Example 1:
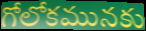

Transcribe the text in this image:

గోలోకమునకు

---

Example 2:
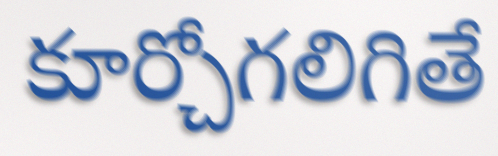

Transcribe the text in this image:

కూర్చోగలిగితే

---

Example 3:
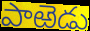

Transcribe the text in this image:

పాఱెడు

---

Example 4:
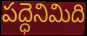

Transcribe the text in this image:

పద్ధెనిమిది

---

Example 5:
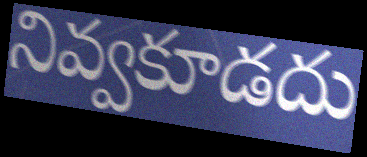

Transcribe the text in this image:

నివ్వకూడదు